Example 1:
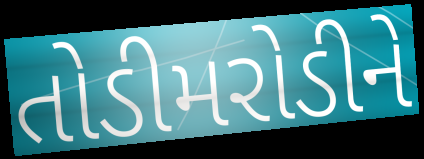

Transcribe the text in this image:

તોડીમરોડીને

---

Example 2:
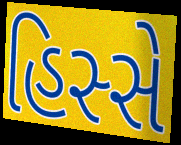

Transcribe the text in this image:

હિસ્સે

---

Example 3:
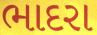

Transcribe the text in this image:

ભાદરા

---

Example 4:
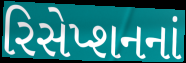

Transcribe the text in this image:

રિસેપ્શનનાં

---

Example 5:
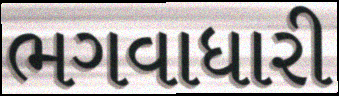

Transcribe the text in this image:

ભગવાધારી